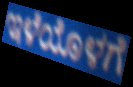
ಇಳೆಯೊಳಗೆ